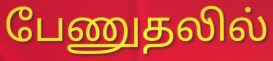
பேணுதலில்